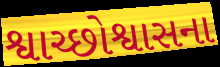
શ્વાચ્છોશ્વાસના